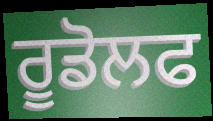
ਰੂਡੋਲਫ